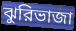
ঝুরিভাজা